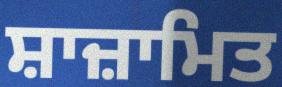
ਸ਼ਾਜ਼ਾਮਿਤ